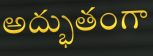
అద్భుతంగా